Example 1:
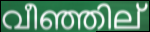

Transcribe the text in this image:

വീഞ്ഞില്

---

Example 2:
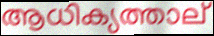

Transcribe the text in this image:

ആധിക്യത്താല്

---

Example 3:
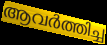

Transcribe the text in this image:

ആവർത്തിച്ച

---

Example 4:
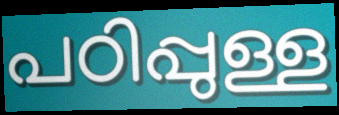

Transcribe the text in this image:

പഠിപ്പുള്ള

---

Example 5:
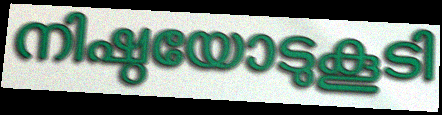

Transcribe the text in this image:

നിഷ്ഠയോടുകൂടി